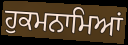
ਹੁਕਮਨਾਮਿਆਂ